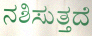
ನಶಿಸುತ್ತದೆ